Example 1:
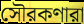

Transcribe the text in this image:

সৌরকণারা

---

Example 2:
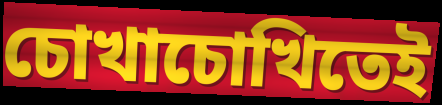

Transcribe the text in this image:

চোখাচোখিতেই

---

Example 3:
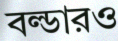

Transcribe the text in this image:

বল্ডারও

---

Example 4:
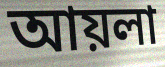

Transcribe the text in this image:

আয়লা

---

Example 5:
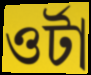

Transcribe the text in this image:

ওর্টা